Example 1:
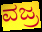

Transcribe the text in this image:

ವಜ್ರ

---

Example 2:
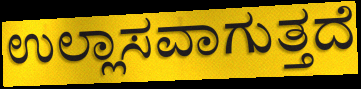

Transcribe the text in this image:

ಉಲ್ಲಾಸವಾಗುತ್ತದೆ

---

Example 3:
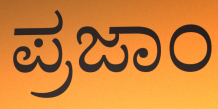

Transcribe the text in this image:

ಪ್ರಜಾಂ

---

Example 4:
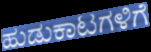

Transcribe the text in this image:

ಹುಡುಕಾಟಗಳಿಗೆ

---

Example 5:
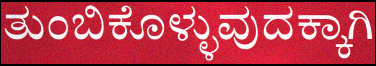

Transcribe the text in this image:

ತುಂಬಿಕೊಳ್ಳುವುದಕ್ಕಾಗಿ